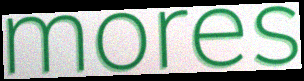
mores